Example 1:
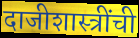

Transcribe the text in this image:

दाजीशास्त्रींची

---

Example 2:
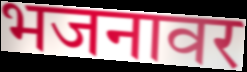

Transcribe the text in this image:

भजनावर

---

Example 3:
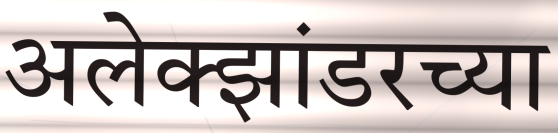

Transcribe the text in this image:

अलेक्झांडरच्या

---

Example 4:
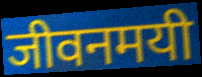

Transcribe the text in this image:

जीवनमयी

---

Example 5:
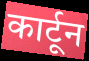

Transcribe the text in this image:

कार्टून